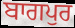
ਬਾਗਪੁਰ